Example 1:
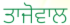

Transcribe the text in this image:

ਤਾਜੋਵਾਲ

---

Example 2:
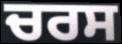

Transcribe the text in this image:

ਚਰਸ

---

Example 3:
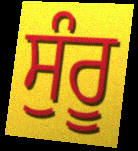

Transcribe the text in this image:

ਸੁੰਰੂ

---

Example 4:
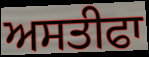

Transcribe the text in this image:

ਅਸਤੀਫਾ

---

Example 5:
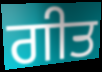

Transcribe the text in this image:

ਗੀਤ